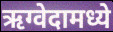
ऋग्वेदामध्ये